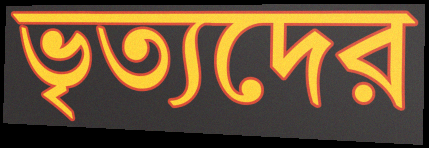
ভৃত্যদের